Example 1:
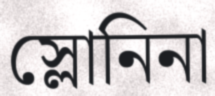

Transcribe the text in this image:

স্লোনিনা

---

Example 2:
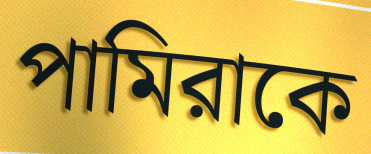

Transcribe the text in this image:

পামিরাকে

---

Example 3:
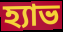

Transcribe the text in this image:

হ্যাভ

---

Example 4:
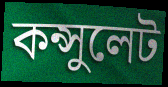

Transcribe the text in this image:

কন্সুলেট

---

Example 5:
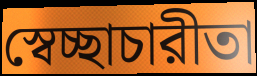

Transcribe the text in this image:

স্বেচ্ছাচারীতা